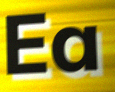
Ea